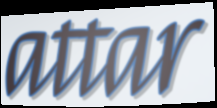
attar